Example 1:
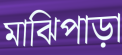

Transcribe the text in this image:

মাঝিপাড়া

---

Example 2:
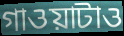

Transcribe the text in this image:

গাওয়াটাও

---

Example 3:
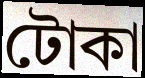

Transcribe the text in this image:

টোকা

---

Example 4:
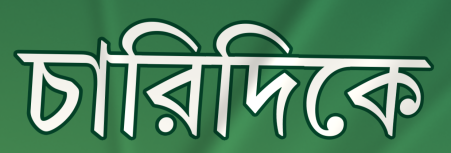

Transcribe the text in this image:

চারিদিকে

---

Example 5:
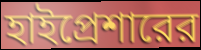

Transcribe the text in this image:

হাইপ্রেশারের